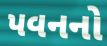
પવનનો